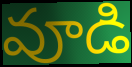
వూడి